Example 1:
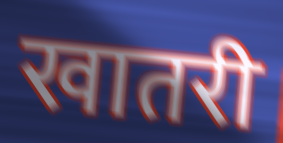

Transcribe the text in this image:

खातरी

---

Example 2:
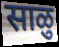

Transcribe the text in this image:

साळु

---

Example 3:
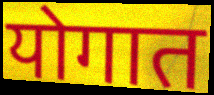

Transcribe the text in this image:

योगात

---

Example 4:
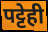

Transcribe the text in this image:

पट्टेही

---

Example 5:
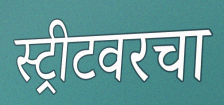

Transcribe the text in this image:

स्ट्रीटवरचा